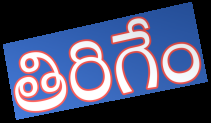
తిరిగేం